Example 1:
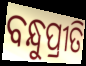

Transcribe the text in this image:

ବନ୍ଧୁପ୍ରୀତି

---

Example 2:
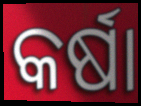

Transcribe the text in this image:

କର୍ଷା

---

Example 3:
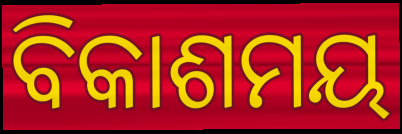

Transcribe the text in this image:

ବିକାଶମୟ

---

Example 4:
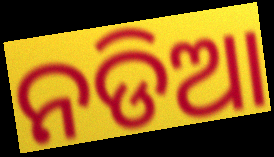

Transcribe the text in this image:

ନଡିଆ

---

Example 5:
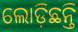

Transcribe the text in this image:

ଲୋଡ଼ିଛନ୍ତି